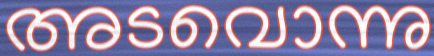
അടവൊന്നു